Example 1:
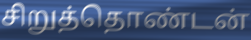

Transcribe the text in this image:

சிறுத்தொண்டன்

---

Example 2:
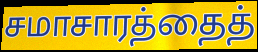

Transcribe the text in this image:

சமாசாரத்தைத்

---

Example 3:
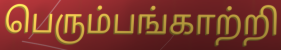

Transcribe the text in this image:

பெரும்பங்காற்றி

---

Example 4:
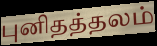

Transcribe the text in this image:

புனிதத்தலம்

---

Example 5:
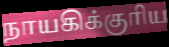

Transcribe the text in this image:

நாயகிக்குரிய